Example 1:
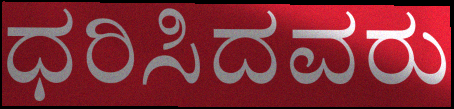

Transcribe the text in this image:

ಧರಿಸಿದವರು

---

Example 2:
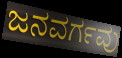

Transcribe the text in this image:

ಜನವರ್ಗವು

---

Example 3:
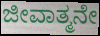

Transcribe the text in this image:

ಜೀವಾತ್ಮನೇ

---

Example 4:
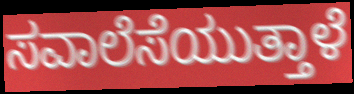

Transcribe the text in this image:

ಸವಾಲೆಸೆಯುತ್ತಾಳೆ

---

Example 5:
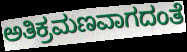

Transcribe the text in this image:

ಅತಿಕ್ರಮಣವಾಗದಂತೆ